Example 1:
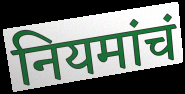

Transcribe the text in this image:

नियमांचं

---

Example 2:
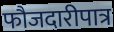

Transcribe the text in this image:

फौजदारीपात्र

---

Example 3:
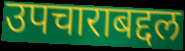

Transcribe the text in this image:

उपचाराबद्दल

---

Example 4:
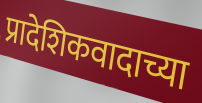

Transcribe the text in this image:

प्रादेशिकवादाच्या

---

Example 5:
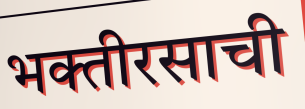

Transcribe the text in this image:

भक्तीरसाची